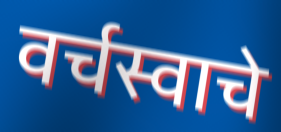
वर्चस्वाचे